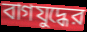
বাগযুদ্ধের